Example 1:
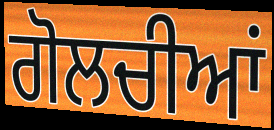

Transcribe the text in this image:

ਗੋਲਚੀਆਂ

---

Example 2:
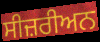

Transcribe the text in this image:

ਸੀਜ਼ਰੀਅਨ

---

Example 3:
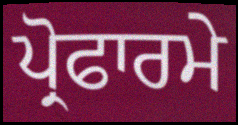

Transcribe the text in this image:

ਪ੍ਰੋਫਾਰਮੇ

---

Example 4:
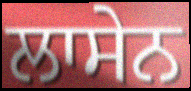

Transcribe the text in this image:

ਲਾਸੇਨ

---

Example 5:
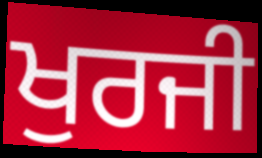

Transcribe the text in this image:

ਖੁਰਜੀ